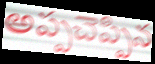
అప్పచెప్పిన